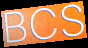
BCS